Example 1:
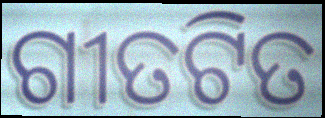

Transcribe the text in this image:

ଗୀତଟିତ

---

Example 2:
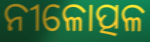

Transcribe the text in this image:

ନୀଳୋତ୍ପଳ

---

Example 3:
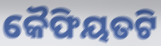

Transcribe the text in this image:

କୈଫିୟତଟି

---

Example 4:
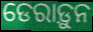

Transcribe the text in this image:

ଡେରାଡ଼ୁନ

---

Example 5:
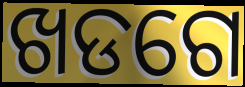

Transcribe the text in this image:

ଖଡଗେ